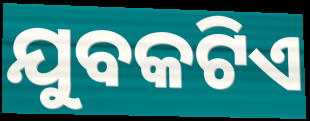
ଯୁବକଟିଏ